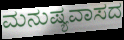
ಮನುಷ್ಯವಾಸದ